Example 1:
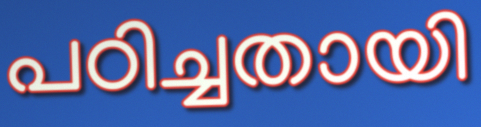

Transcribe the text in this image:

പഠിച്ചതായി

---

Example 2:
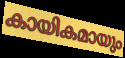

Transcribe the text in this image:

കായികമായും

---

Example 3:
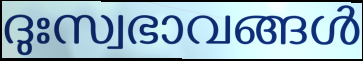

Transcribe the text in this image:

ദുഃസ്വഭാവങ്ങൾ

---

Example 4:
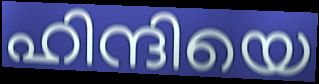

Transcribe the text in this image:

ഹിന്ദിയെ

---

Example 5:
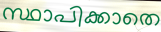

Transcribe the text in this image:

സ്ഥാപിക്കാതെ